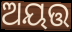
ଅୟତ୍ତ